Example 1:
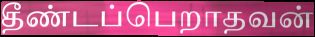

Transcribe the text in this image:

தீண்டப்பெறாதவன்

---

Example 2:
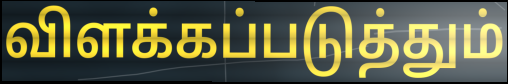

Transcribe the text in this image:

விளக்கப்படுத்தும்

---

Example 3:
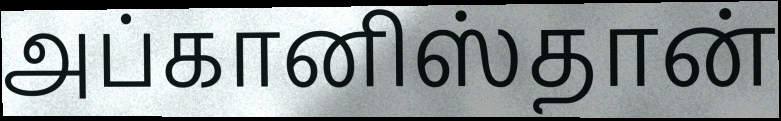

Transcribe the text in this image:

அப்கானிஸ்தான்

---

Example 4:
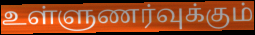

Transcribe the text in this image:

உள்ளுணர்வுக்கும்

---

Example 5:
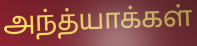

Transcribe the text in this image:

அந்த்யாக்கள்